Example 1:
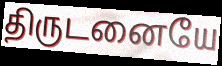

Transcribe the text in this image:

திருடனையே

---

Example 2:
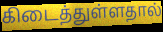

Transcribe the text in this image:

கிடைத்துள்ளதால்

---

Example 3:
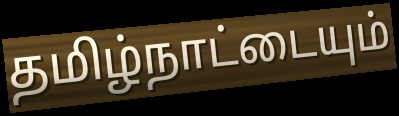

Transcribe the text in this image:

தமிழ்நாட்டையும்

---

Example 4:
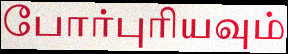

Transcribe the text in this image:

போர்புரியவும்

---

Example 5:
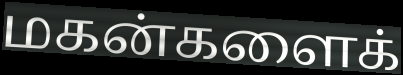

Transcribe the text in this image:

மகன்களைக்